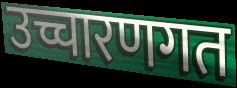
उच्चारणगत